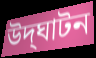
উদ্‌ঘাটন